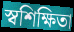
স্বশিক্ষিতা